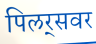
पिलर्सवर